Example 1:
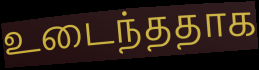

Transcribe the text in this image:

உடைந்ததாக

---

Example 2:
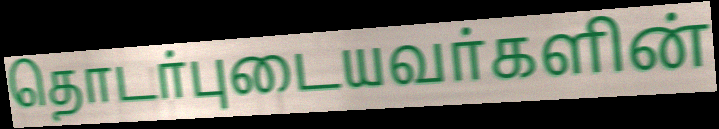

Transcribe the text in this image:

தொடர்புடையவர்களின்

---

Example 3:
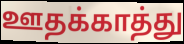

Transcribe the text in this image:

ஊதக்காத்து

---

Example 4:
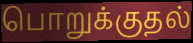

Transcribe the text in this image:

பொறுக்குதல்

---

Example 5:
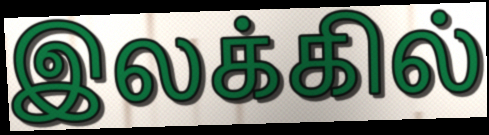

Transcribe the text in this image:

இலக்கில்